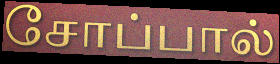
சோப்பால்